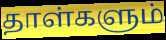
தாள்களும்